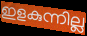
ഇളകുന്നില്ല